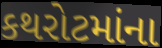
કથરોટમાંના